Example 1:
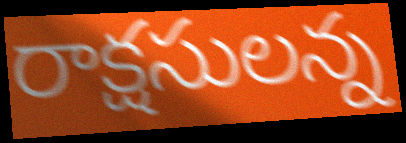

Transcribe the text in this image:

రాక్షసులన్న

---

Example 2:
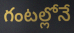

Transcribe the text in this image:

గంటల్లోనే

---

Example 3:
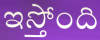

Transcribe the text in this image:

ఇస్తోంది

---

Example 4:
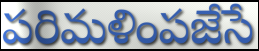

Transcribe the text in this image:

పరిమళింపజేసే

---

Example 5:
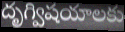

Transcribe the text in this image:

దృగ్విషయాలకు